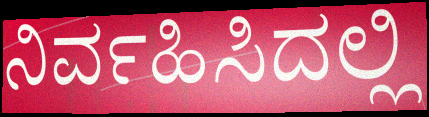
ನಿರ್ವಹಿಸಿದಲ್ಲಿ